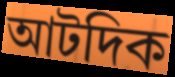
আটদিক